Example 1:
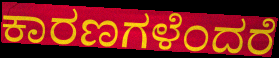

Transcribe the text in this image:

ಕಾರಣಗಳೆಂದರೆ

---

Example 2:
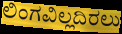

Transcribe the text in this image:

ಲಿಂಗವಿಲ್ಲದಿರಲು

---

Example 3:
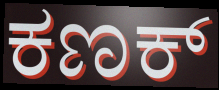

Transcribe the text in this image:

ಕಣಕ್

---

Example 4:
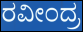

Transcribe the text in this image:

ರವೀಂದ್ರ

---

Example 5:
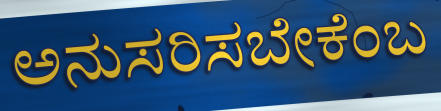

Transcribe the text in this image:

ಅನುಸರಿಸಬೇಕೆಂಬ